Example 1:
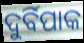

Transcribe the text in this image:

ଦୁର୍ବିପାକ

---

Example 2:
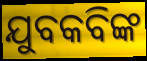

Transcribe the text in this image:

ଯୁବକବିଙ୍କ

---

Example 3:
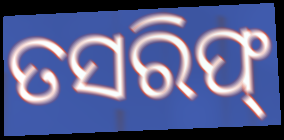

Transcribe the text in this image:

ତସରିଫ୍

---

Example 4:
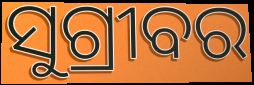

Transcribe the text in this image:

ସୁଗ୍ରୀବର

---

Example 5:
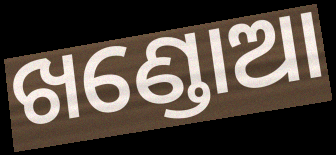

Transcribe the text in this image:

ଖଣ୍ଡୋଆ